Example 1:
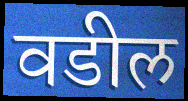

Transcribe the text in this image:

वडील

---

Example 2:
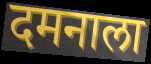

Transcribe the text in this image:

दमनाला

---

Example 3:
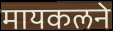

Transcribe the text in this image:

मायकलने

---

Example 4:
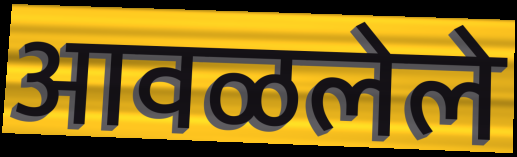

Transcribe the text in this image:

आवळलेले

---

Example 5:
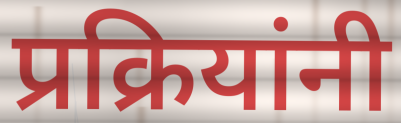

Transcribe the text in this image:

प्रक्रियांनी